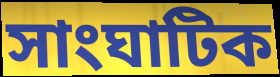
সাংঘাটিক